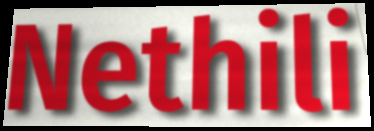
Nethili